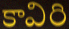
కావిరి